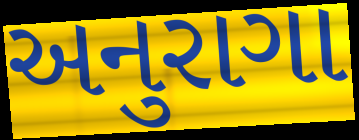
અનુરાગા